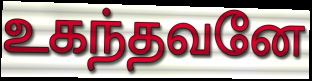
உகந்தவனே